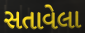
સતાવેલા